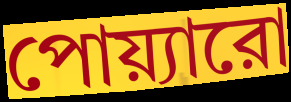
পোয়্যারো